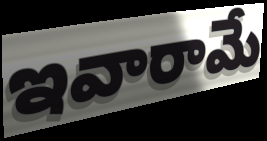
ఇవారామే